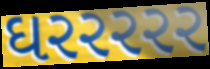
ઘરરરરર